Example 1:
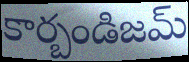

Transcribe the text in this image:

కార్బండిజమ్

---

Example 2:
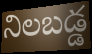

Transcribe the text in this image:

నిలబడ్డ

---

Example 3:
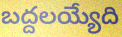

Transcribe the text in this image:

బద్దలయ్యేది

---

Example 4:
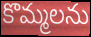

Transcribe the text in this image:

కొమ్మలను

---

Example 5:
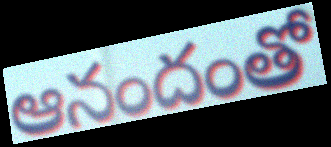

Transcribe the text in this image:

ఆనందంతో